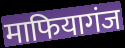
माफियागंज